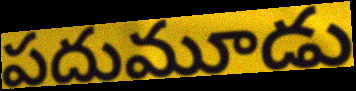
పదుమూడు